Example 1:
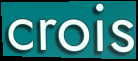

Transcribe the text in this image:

crois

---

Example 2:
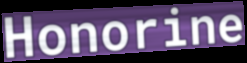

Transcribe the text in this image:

Honorine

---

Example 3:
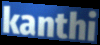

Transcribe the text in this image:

kanthi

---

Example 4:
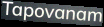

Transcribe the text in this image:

Tapovanam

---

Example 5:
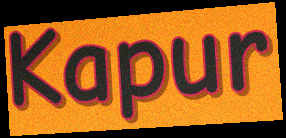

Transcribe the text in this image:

Kapur